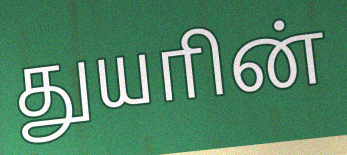
துயரின்